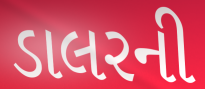
ડાલરની